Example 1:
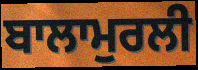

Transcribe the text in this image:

ਬਾਲਾਮੁਰਲੀ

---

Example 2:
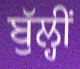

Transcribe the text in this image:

ਬੁੱਲ੍ਹੀਂ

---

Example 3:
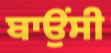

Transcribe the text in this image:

ਬਾਉਂਸੀ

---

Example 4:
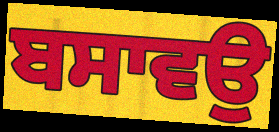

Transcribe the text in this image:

ਬਸਾਵਉ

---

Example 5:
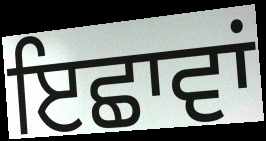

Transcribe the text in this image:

ਇਛਾਵਾਂ